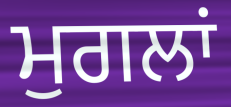
ਮੁਗਲਾਂ